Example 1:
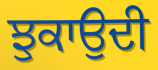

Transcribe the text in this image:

ਝੁਕਾਉਦੀ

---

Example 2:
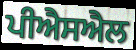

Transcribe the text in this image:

ਪੀਐਸਐਲ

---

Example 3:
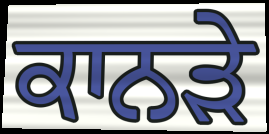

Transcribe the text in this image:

ਕਾਨੜੇ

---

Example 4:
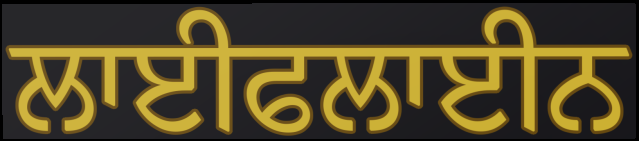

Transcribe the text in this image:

ਲਾਈਫਲਾਈਨ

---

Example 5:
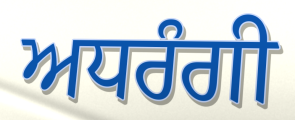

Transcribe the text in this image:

ਅਧਰੰਗੀ